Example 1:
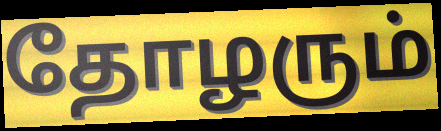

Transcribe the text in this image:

தோழரும்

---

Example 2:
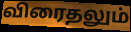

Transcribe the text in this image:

விரைதலும்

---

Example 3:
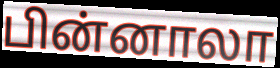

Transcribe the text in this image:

பின்னாலா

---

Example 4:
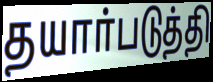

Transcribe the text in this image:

தயார்படுத்தி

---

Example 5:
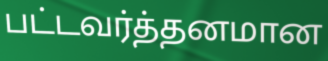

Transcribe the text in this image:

பட்டவர்த்தனமான